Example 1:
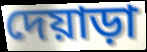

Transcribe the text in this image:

দেয়াড়া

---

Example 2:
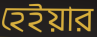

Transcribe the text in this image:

হেইয়ার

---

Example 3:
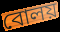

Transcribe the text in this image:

বোলয়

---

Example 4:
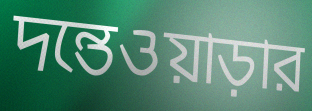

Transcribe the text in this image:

দন্তেওয়াড়ার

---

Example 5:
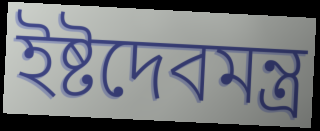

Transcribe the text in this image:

ইষ্টদেবমন্ত্র